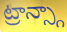
ట్రాన్స్గా